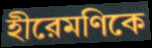
হীরেমণিকে